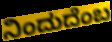
ನಿಂದುದೆಂಬ